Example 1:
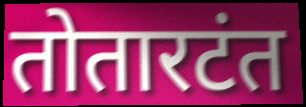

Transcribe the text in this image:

तोतारटंत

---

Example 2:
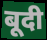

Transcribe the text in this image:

बूदी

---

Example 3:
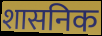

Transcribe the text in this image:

शासनिक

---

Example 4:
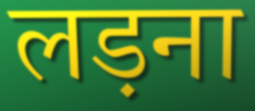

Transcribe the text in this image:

लड़ना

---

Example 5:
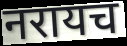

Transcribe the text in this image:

नरायच